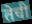
तेची